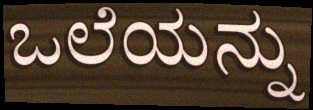
ಒಲೆಯನ್ನು